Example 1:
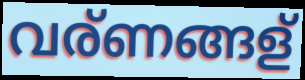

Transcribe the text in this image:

വര്ണങ്ങള്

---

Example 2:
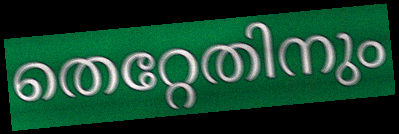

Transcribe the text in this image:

തെറ്റേതിനും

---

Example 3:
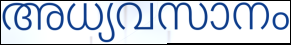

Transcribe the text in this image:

അധ്യവസാനം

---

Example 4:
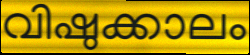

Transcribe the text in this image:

വിഷുക്കാലം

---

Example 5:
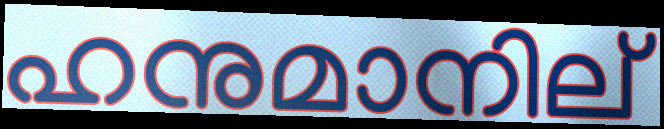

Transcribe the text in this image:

ഹനുമാനില്